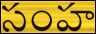
సంహ